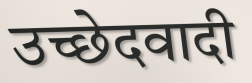
उच्छेदवादी